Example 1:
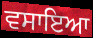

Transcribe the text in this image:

ਵਸਾਇਆ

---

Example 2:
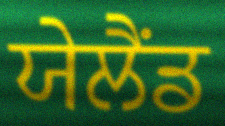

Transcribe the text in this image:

ਯੇਲੈਂਡ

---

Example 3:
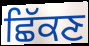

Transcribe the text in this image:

ਛਿੱਕਣ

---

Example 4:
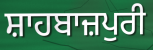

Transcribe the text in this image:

ਸ਼ਾਹਬਾਜ਼ਪੁਰੀ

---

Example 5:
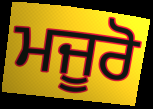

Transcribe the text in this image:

ਮਜੂਰੋ